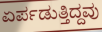
ಏರ್ಪಡುತ್ತಿದ್ದವು